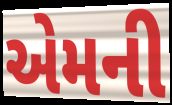
એમની